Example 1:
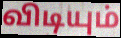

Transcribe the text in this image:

விடியும்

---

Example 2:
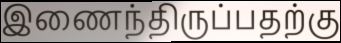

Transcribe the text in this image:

இணைந்திருப்பதற்கு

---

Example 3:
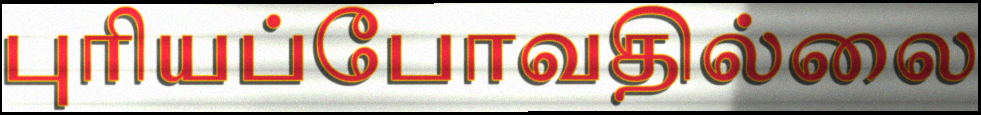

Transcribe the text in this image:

புரியப்போவதில்லை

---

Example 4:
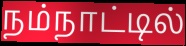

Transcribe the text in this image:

நம்நாட்டில்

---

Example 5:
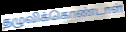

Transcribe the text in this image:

தழுவிக்கொண்டாள்